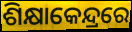
ଶିକ୍ଷାକେନ୍ଦ୍ରରେ